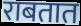
राबतात